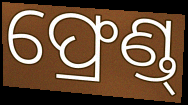
ଫ୍ରେଣ୍ଡ୍